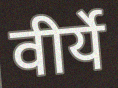
वीर्ये